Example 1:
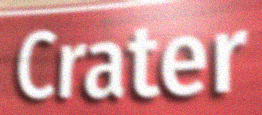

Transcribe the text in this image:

Crater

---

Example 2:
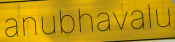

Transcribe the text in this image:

anubhavalu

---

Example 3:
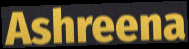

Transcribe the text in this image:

Ashreena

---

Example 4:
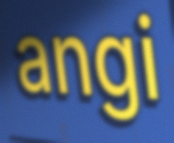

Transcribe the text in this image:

angi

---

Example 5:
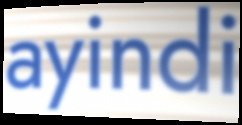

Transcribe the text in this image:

ayindi